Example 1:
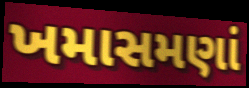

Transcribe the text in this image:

ખમાસમણાં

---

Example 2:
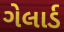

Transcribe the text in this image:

ગેલાર્ડ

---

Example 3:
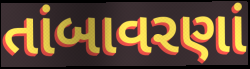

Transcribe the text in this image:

તાંબાવરણાં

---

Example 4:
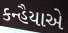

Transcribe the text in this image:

કન્હૈયાએ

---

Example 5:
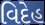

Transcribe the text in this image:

વિદેહ